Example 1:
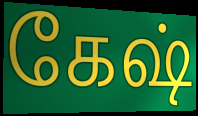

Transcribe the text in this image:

கேஷ்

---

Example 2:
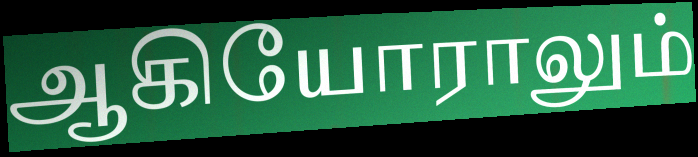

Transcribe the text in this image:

ஆகியோராலும்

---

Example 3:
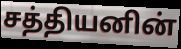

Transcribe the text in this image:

சத்தியனின்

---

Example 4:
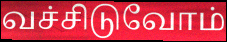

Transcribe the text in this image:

வச்சிடுவோம்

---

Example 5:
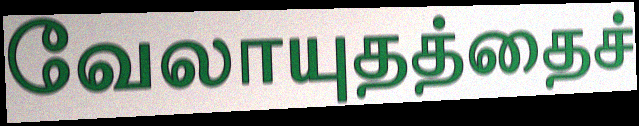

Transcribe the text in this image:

வேலாயுதத்தைச்